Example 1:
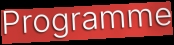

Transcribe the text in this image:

Programme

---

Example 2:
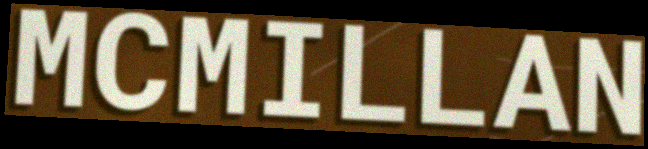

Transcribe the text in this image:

MCMILLAN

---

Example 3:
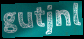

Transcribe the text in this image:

gutjnl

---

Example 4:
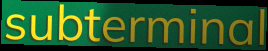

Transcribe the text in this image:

subterminal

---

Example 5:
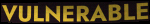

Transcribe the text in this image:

VULNERABLE